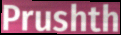
Prushth